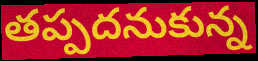
తప్పదనుకున్న